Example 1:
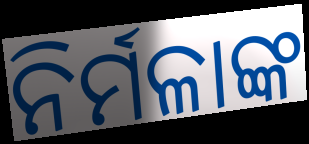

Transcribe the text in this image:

ନିର୍ମଳାଙ୍କ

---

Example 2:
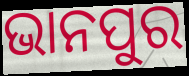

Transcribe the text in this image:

ଭାନପୁର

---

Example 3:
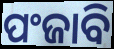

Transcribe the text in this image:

ପଂଜାବି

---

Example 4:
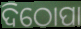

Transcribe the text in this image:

ଦିଠୋପା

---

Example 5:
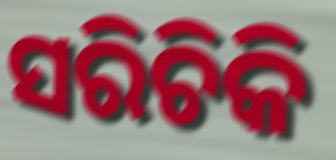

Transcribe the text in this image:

ସରିଚିକି